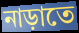
নাড়াতে